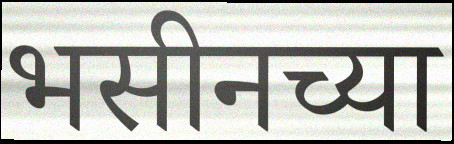
भसीनच्या